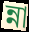
ন্না